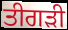
ਤੀਗੜੀ